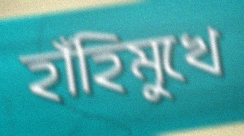
হাঁহিমুখে